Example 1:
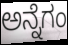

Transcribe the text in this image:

ಅನ್ನೆಗಂ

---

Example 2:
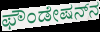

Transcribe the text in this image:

ಫೌಂಡೇಷನ್‌ನ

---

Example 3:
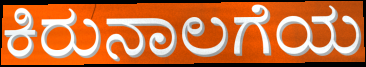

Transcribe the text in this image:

ಕಿರುನಾಲಗೆಯ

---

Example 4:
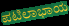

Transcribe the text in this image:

ಪಟಿಲಾಭಾಯ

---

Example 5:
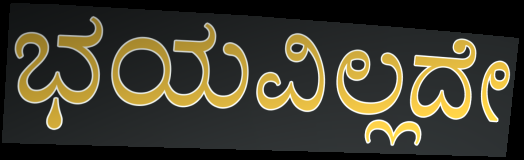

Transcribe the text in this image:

ಭಯವಿಲ್ಲದೇ